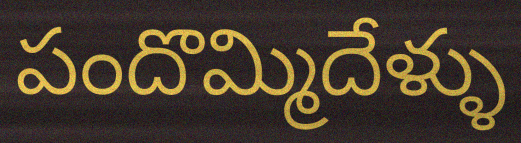
పందొమ్మిదేళ్ళు